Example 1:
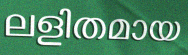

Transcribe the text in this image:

ലളിതമായ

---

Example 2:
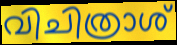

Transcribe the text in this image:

വിചിത്രാശ്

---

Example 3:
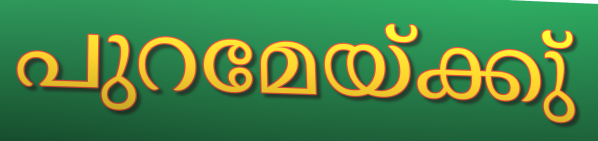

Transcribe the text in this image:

പുറമേയ്ക്കു്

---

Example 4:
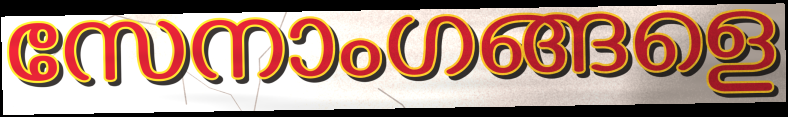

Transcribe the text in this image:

സേനാംഗങ്ങളെ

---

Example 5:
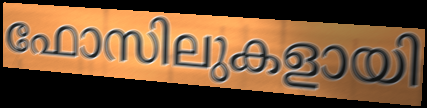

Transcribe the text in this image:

ഫോസിലുകളായി